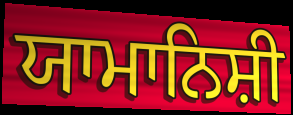
ਯਾਮਾਨਿਸ਼ੀ